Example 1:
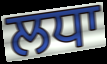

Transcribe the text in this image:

ਲਧਾ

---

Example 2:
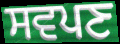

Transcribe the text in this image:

ਸਵਪਣ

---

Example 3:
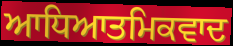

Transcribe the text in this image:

ਆਧਿਆਤਮਿਕਵਾਦ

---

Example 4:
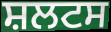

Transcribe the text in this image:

ਸ਼ਲਟਸ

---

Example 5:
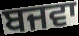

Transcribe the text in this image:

ਬਜਵਾ